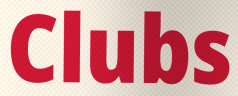
Clubs